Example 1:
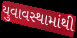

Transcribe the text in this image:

યુવાવસ્થામાંથી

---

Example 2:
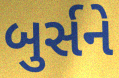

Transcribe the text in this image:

બુર્સને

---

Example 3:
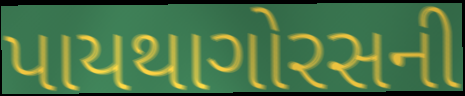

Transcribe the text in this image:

પાયથાગોરસની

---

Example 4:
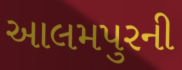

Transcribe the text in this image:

આલમપુરની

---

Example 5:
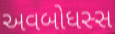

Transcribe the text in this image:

અવબોધસ્સ